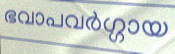
ഭവാപവർഗ്ഗായ